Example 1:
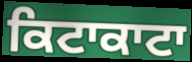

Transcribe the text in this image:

ਕਿਟਾਕਾਟਾ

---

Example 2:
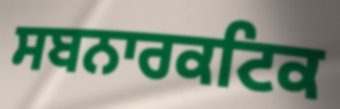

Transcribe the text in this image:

ਸਬਨਾਰਕਟਿਕ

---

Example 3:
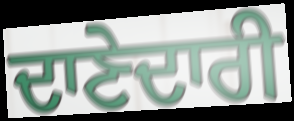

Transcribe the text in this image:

ਦਾਣੇਦਾਰੀ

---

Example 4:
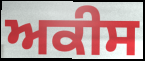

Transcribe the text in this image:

ਅਕੀਸ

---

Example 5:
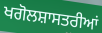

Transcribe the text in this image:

ਖਗੋਲਸ਼ਾਸਤਰੀਆਂ